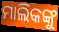
ମାଲିକଙ୍କୁ